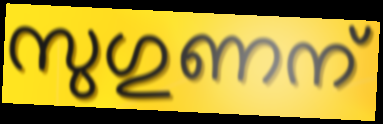
സുഗുണന്